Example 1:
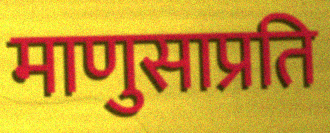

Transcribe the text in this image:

माणुसाप्रति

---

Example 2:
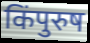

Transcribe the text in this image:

किंपुरुष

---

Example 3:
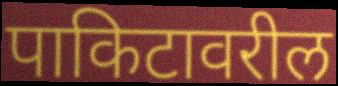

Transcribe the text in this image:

पाकिटावरील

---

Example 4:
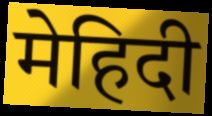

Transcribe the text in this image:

मेहिदी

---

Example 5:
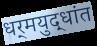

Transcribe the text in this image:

धर्मयुद्धांत